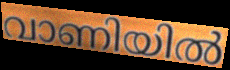
വാണിയിൽ